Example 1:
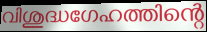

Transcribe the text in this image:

വിശുദ്ധഗേഹത്തിന്റെ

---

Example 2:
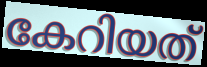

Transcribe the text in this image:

കേറിയത്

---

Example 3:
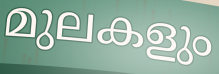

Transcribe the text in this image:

മുലകളും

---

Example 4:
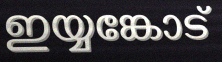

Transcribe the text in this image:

ഇയ്യങ്കോട്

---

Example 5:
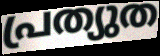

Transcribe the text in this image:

പ്രത്യുത